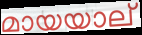
മായയാല്